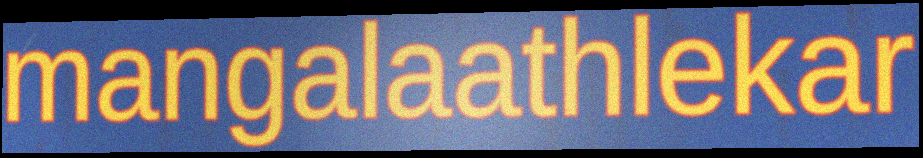
mangalaathlekar